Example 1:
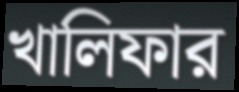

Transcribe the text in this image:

খালিফার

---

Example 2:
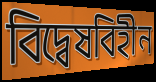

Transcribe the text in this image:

বিদ্বেষবিহীন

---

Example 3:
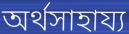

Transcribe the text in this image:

অর্থসাহায্য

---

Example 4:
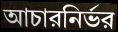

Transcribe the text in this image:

আচারনির্ভর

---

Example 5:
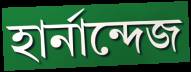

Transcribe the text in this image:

হার্নান্দেজ